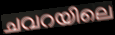
ചവറയിലെ